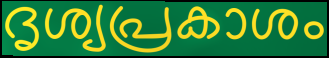
ദൃശ്യപ്രകാശം